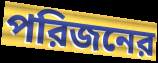
পরিজনের